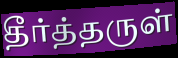
தீர்த்தருள்